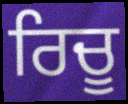
ਰਿਚੂ